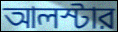
আলস্টার